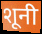
शूनी